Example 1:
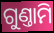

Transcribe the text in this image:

ଗୁଣ୍ତାମି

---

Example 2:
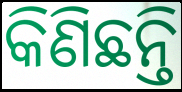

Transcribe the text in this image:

କିଣିଛନ୍ତି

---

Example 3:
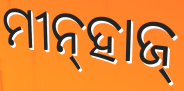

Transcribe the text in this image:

ମୀନ୍‌ହାଜ୍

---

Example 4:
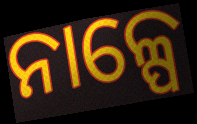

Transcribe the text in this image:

ନାଳ୍ପେ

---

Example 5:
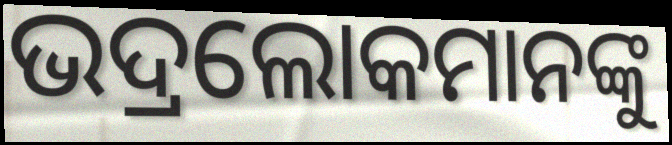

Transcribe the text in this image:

ଭଦ୍ରଲୋକମାନଙ୍କୁ